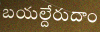
బయల్దేరుదాం